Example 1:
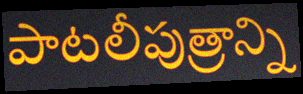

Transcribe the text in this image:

పాటలీపుత్రాన్ని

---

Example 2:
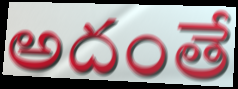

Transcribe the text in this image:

అదంతే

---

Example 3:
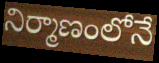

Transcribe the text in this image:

నిర్మాణంలోనే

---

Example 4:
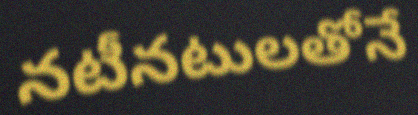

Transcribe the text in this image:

నటీనటులతోనే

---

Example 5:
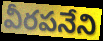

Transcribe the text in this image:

వీరపనేని